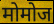
मोमोज